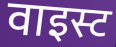
वाइस्ट